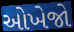
ઓખેજો